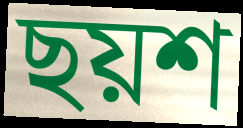
ছয়শ